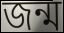
জন্ম